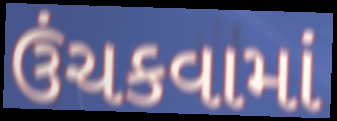
ઉંચકવામાં